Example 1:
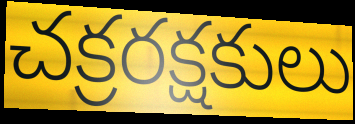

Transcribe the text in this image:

చక్రరక్షకులు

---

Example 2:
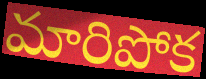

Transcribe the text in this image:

మారిపోక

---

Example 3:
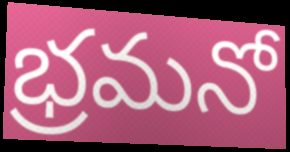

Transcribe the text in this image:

భ్రమనో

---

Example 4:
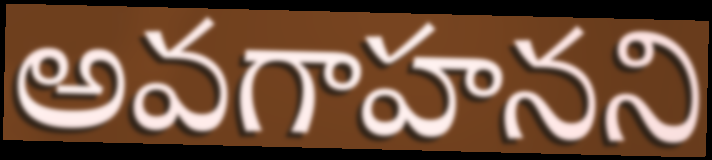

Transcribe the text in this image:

అవగాహనని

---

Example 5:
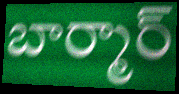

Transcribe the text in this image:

బార్మార్